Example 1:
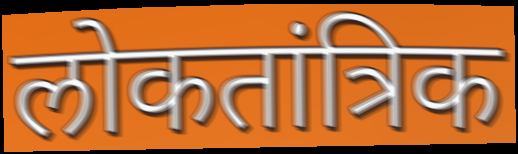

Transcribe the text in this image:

लोकतांत्रिक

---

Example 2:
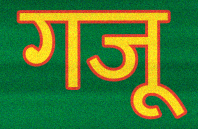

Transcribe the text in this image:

गजू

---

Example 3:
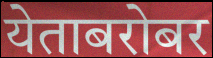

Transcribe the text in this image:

येताबरोबर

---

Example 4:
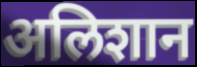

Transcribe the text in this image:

अलिशान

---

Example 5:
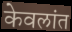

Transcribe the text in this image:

केवलांत